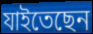
যাইতেছেন